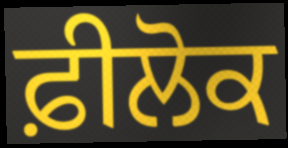
ਫ਼ੀਲੋਕ